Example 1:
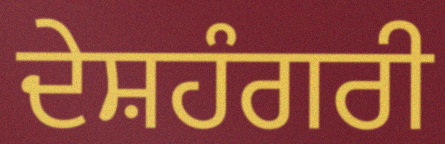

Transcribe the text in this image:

ਦੇਸ਼ਹੰਗਰੀ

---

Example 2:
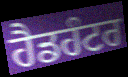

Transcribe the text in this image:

ਹੈਡਹੰਟਰ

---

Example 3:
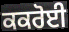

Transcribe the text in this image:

ਕਕਰੋਈ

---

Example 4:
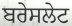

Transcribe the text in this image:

ਬਰੇਸਲੇਟ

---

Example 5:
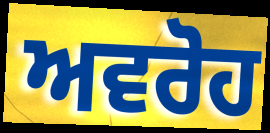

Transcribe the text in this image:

ਅਵਰੋਹ